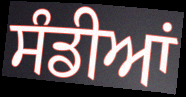
ਸੰਡੀਆਂ